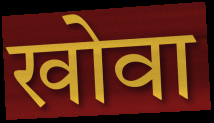
खोवा